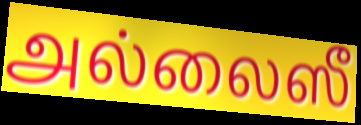
அல்லைஸீ